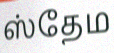
ஸ்தேம